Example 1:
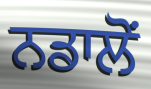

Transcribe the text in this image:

ਨਡਾਲੋਂ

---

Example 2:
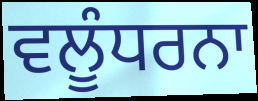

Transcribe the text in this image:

ਵਲੂੰਧਰਨਾ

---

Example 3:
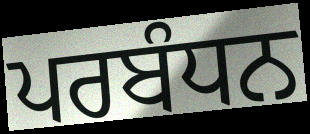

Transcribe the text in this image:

ਪਰਬੰਧਨ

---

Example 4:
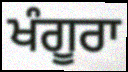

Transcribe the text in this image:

ਖੰਗੂਰਾ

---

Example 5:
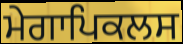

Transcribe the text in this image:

ਮੇਗਾਪਿਕਲਸ